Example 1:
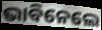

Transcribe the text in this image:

ଭାବିନେଲେ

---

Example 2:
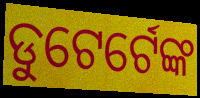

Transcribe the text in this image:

ଡୁଟେର୍ଟେଙ୍କ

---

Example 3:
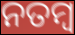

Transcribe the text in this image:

ନତମ୍ବ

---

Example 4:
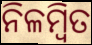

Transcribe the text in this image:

ନିଳମ୍ବିତ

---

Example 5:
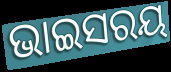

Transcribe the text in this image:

ଭାଇସରୟ